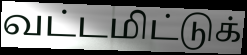
வட்டமிட்டுக்